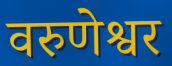
वरुणेश्वर